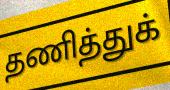
தணித்துக்